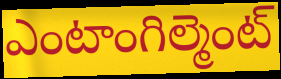
ఎంటాంగిల్మెంట్